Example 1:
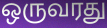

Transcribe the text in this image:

ஒருவரது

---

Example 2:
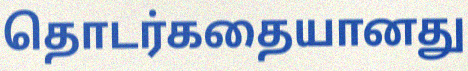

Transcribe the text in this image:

தொடர்கதையானது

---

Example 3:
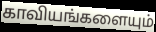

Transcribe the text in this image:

காவியங்களையும்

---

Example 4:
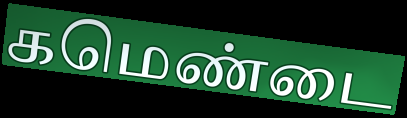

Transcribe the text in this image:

கமெண்டை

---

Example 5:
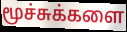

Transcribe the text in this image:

மூச்சுக்களை